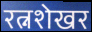
रत्नशेखर